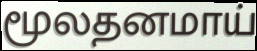
மூலதனமாய்